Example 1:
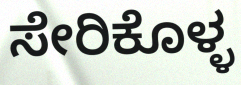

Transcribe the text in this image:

ಸೇರಿಕೊಳ್ಳ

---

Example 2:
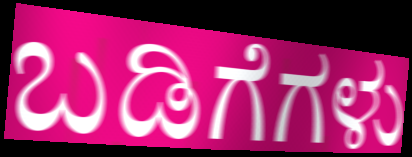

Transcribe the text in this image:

ಬಡಿಗೆಗಳು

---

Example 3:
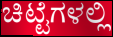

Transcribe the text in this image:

ಚಿಟ್ಟೆಗಳಲ್ಲಿ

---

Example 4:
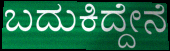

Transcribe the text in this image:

ಬದುಕಿದ್ದೇನೆ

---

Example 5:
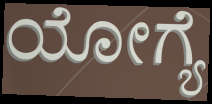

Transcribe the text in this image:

ಯೋಗ್ಯೆ